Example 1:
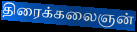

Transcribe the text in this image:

திரைக்கலைஞன்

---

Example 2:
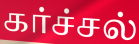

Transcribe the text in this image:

கர்ச்சல்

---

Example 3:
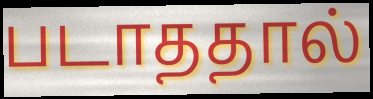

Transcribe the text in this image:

படாததால்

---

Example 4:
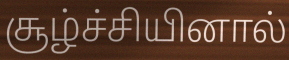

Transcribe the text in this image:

சூழ்ச்சியினால்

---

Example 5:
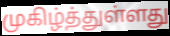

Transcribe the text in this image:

முகிழ்த்துள்ளது